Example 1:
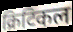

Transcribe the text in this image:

क्रिटिकल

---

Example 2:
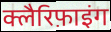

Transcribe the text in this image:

क्लैरिफ़ाइंग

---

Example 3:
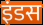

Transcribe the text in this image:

इंडस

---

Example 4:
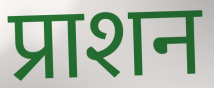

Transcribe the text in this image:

प्राशन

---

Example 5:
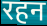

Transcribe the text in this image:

रहन